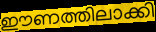
ഈണത്തിലാക്കി